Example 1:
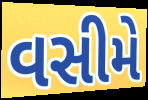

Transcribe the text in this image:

વસીમે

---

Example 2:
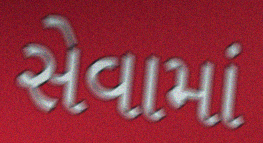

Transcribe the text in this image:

સેવામાં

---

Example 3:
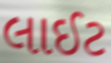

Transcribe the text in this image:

લાઈટ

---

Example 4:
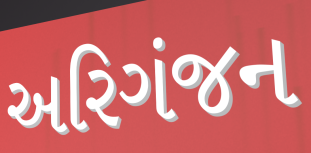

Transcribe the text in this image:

અરિગંજન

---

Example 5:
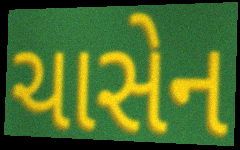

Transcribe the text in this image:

ચાસેન